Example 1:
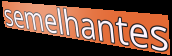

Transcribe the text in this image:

semelhantes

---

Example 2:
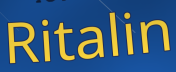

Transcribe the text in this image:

Ritalin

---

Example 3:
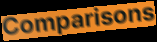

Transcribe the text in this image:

Comparisons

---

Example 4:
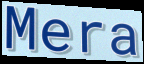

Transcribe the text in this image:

Mera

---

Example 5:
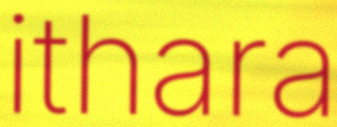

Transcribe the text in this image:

ithara